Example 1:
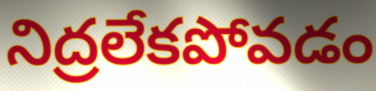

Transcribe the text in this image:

నిద్రలేకపోవడం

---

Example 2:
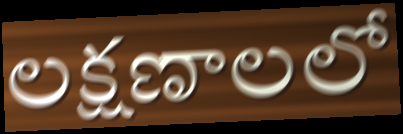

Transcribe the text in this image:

లక్షణాలలో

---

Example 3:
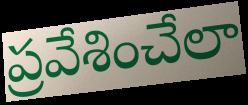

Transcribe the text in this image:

ప్రవేశించేలా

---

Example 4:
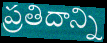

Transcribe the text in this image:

ప్రతిదాన్ని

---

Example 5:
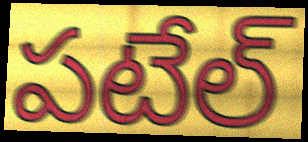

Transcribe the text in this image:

పటేల్